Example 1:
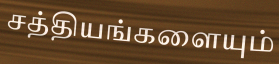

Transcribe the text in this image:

சத்தியங்களையும்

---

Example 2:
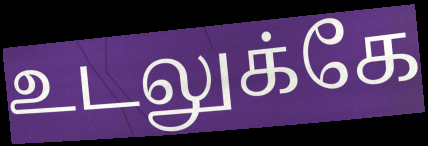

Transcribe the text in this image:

உடலுக்கே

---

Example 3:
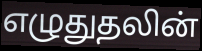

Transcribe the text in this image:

எழுதுதலின்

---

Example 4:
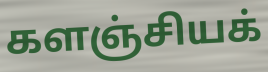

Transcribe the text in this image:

களஞ்சியக்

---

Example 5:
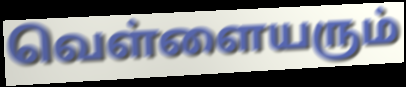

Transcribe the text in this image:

வெள்ளையரும்